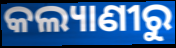
କଲ୍ୟାଣୀରୁ